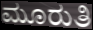
ಮೂರುತಿ